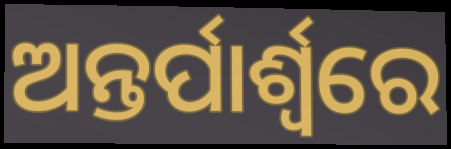
ଅନ୍ତର୍ପାର୍ଶ୍ୱରେ